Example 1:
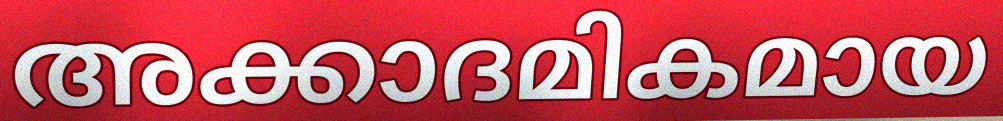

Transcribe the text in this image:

അക്കാദമികമായ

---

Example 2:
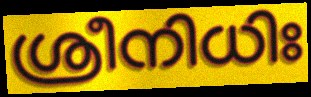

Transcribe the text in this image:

ശ്രീനിധിഃ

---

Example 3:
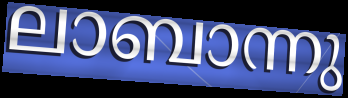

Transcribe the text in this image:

ലാബാന്നു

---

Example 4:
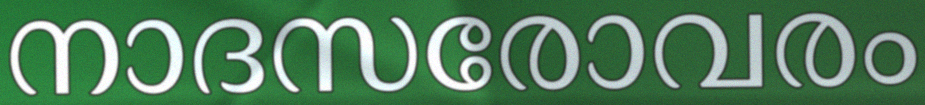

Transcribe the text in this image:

നാദസരോവരം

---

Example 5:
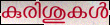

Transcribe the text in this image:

കുരിശുകൾ